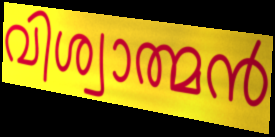
വിശ്വാത്മൻ